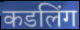
कडलिंग